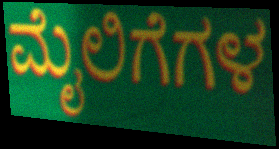
ಮೈಲಿಗೆಗಳ